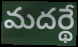
మదర్థే